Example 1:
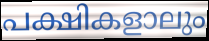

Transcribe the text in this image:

പക്ഷികളാലും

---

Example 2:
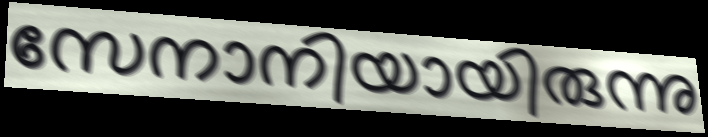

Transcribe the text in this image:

സേനാനിയായിരുന്നു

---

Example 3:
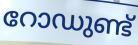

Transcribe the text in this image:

റോഡുണ്ട്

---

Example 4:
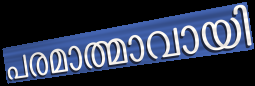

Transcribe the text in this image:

പരമാത്മാവായി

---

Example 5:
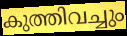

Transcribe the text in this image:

കുത്തിവച്ചും